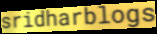
sridharblogs